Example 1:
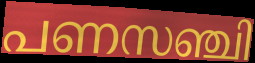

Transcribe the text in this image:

പണസഞ്ചി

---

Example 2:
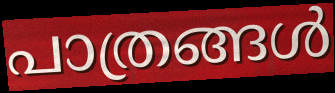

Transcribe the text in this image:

പാത്രങ്ങൾ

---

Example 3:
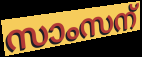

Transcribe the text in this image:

സാംസന്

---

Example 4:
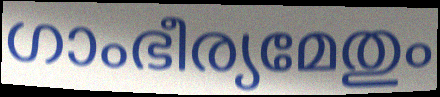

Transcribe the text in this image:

ഗാംഭീര്യമേതും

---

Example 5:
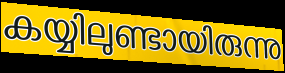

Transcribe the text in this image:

കയ്യിലുണ്ടായിരുന്നു